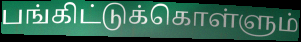
பங்கிட்டுக்கொள்ளும்